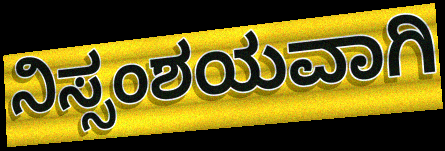
ನಿಸ್ಸಂಶಯವಾಗಿ